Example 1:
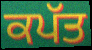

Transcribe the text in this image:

ਕਪੱਤ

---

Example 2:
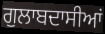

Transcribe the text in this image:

ਗੁਲਾਬਦਾਸੀਆਂ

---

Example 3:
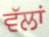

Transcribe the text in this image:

ਵੱਲਾਂ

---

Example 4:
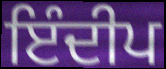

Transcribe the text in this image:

ਇੰਦੀਪ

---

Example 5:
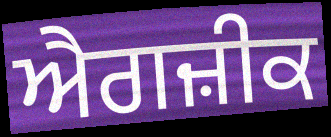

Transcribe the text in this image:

ਐਗਜ਼ੀਕ